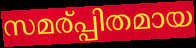
സമര്പ്പിതമായ